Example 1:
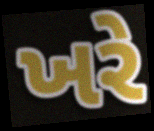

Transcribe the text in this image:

ખરે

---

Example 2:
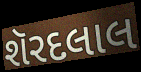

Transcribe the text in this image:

શૅરદલાલ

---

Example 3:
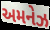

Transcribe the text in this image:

અમનેઝ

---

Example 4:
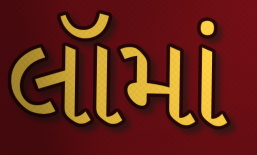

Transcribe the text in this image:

લૉમાં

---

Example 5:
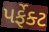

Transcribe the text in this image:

પર્ફેક્ટ